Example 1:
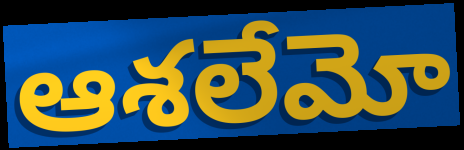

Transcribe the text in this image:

ఆశలేమో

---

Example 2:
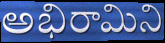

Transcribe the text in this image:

అభిరామిని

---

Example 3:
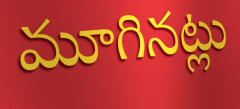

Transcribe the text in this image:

మూగినట్లు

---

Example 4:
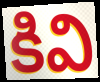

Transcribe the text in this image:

కివి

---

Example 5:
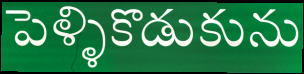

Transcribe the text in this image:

పెళ్ళికొడుకును